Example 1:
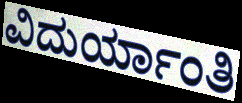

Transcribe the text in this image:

ವಿದುರ್ಯಾಂತಿ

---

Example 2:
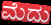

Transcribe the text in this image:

ಮೆದು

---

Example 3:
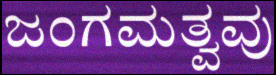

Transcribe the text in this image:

ಜಂಗಮತ್ವವು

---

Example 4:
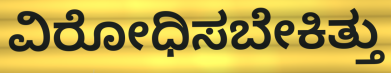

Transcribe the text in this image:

ವಿರೋಧಿಸಬೇಕಿತ್ತು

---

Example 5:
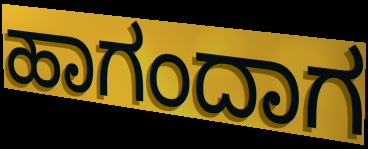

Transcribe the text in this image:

ಹಾಗಂದಾಗ